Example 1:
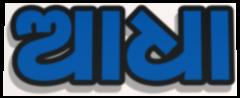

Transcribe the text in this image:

ଆଧା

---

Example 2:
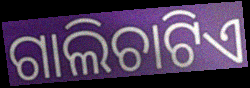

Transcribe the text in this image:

ଗାଲିଚାଟିଏ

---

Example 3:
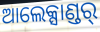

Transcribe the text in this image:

ଆଲେକ୍ସାଣ୍ଡର୍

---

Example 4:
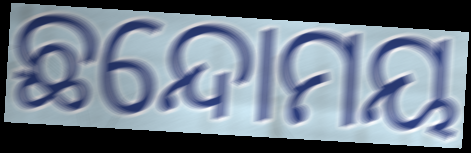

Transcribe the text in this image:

ଛନ୍ଦୋମୟ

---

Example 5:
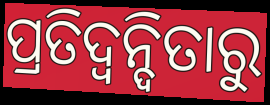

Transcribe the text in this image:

ପ୍ରତିଦ୍ୱନ୍ଦିତାରୁ